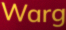
Warg